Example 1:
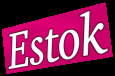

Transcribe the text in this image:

Estok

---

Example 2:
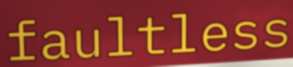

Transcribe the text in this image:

faultless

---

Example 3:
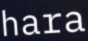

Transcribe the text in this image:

hara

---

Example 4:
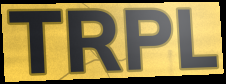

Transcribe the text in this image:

TRPL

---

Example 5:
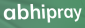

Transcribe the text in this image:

abhipray